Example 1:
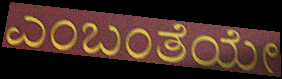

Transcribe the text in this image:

ಎಂಬಂತೆಯೇ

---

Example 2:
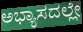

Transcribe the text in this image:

ಅಭ್ಯಾಸದಲ್ಲೇ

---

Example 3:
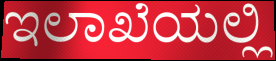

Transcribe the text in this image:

ಇಲಾಖೆಯಲ್ಲಿ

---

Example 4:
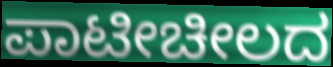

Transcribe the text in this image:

ಪಾಟೀಚೀಲದ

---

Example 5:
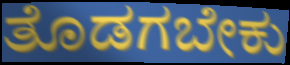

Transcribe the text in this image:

ತೊಡಗಬೇಕು